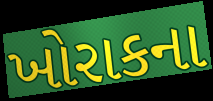
ખોરાકના